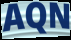
AQN